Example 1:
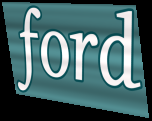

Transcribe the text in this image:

ford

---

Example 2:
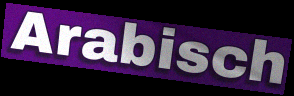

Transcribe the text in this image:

Arabisch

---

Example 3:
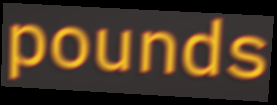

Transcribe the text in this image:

pounds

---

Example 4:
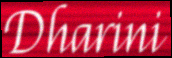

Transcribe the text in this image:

Dharini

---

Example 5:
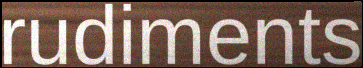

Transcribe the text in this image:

rudiments